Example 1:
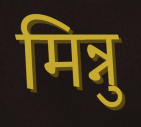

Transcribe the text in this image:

मिन्नु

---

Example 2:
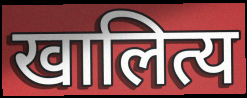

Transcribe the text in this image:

खालित्य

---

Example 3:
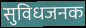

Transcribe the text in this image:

सुविधजनक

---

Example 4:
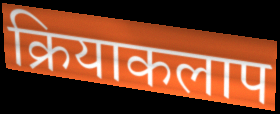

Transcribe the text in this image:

क्रियाकलाप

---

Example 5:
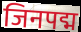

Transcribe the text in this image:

जिनपद्म